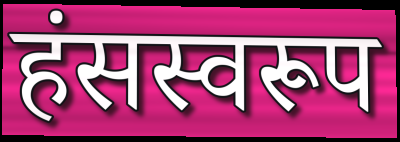
हंसस्वरूप